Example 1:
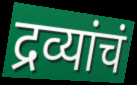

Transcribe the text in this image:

द्रव्यांचं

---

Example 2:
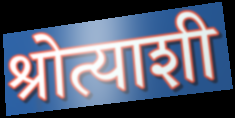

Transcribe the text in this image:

श्रोत्याशी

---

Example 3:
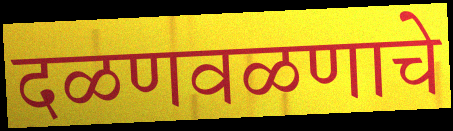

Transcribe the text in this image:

दळणवळणाचे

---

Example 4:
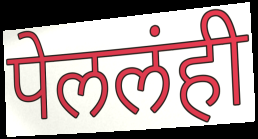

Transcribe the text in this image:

पेललंही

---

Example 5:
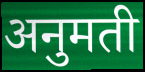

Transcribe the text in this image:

अनुमती